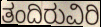
ತಂದಿರುವಿರಿ